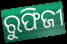
ରୁଫିଜୀ